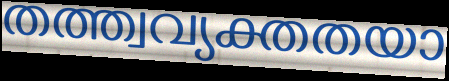
തത്ത്വവ്യക്തതയാ